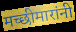
मच्छीमारांनी